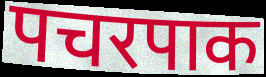
पचरपाक